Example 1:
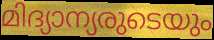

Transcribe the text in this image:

മിദ്യാന്യരുടെയും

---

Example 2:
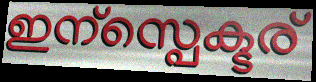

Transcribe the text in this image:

ഇന്സ്പെക്ടര്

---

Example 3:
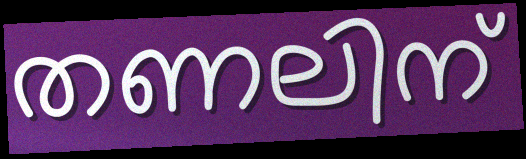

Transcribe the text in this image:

തണലിന്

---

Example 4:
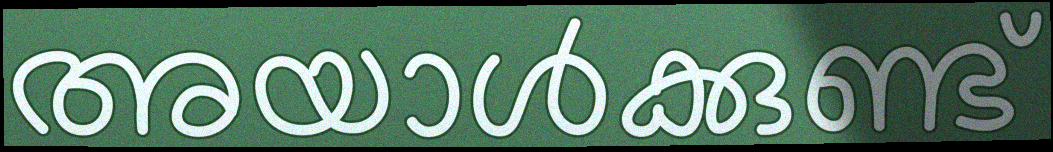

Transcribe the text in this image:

അയാൾക്കുണ്ട്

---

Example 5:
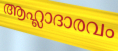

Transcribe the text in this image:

ആഹ്ലാദാരവം